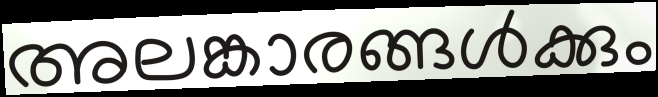
അലങ്കാരങ്ങൾക്കും